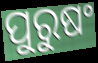
ପୁରୁଷଂ